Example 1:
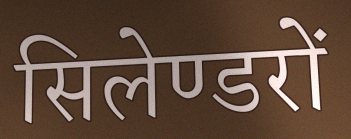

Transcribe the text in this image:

सिलेण्डरों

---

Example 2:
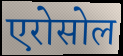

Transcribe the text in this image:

एरोसोल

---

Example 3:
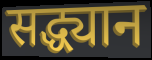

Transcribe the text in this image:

सद्ध्यान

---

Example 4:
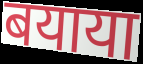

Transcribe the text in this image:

बयाया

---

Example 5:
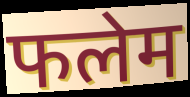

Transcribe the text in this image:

फलेम